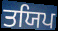
ਤਯਿਪ